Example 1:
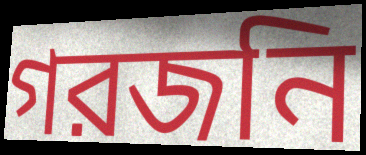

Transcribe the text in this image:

গরজনি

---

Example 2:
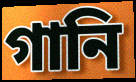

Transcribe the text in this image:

গানি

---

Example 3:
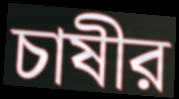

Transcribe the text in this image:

চাষীর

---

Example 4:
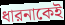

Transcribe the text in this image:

ধারনাকেই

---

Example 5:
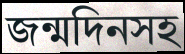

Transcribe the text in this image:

জন্মদিনসহ